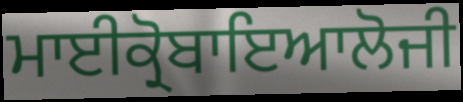
ਮਾਈਕ੍ਰੋਬਾਇਆਲੋਜੀ